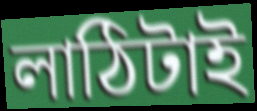
লাঠিটাই